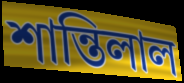
শান্তিলাল